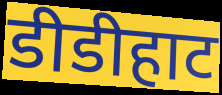
डीडीहाट